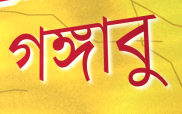
গঙ্গাবু